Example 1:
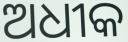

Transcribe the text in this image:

ଅଧୀକ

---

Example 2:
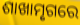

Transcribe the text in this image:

ଶାଖାମୃଗରେ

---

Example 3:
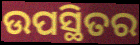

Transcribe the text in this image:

ଉପସ୍ଥିତର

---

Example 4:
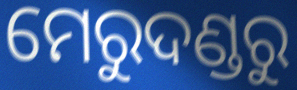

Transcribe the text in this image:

ମେରୁଦଣ୍ଡରୁ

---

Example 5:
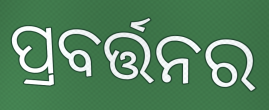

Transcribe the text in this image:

ପ୍ରବର୍ତ୍ତନର